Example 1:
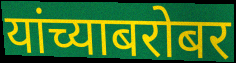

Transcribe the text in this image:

यांच्याबरोबर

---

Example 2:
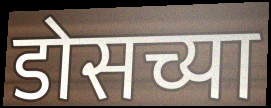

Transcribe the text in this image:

डोसच्या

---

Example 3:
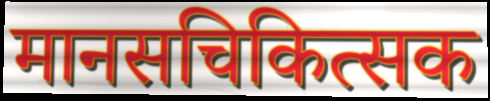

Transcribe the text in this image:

मानसचिकित्सक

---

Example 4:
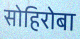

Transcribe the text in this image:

सोहिरोबा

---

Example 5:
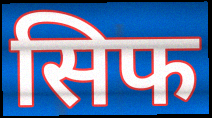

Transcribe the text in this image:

सिफ